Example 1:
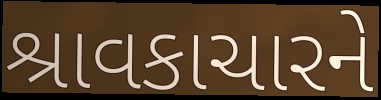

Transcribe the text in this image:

શ્રાવકાચારને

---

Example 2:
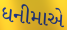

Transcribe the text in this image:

ધનીમાએ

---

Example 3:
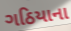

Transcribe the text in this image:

ગઠિયાના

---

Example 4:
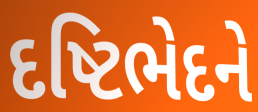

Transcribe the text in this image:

દષ્ટિભેદને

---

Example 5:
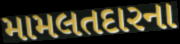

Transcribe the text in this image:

મામલતદારના